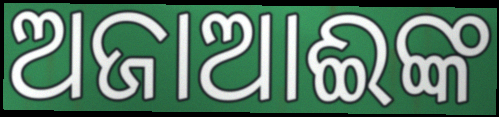
ଅଜାଆଈଙ୍କ